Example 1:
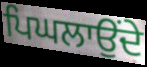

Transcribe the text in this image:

ਪਿਘਲਾਉਂਦੇ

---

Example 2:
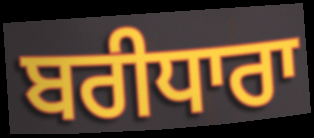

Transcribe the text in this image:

ਬਰੀਧਾਰਾ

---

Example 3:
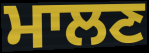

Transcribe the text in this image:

ਮਾਲਣ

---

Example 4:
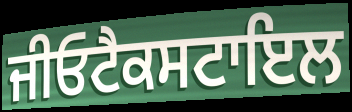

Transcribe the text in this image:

ਜੀਓਟੈਕਸਟਾਇਲ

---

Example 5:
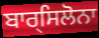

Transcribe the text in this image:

ਬਾਰ੍ਸਿਲੋਨਾ